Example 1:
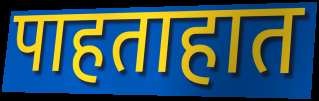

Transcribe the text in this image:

पाहताहात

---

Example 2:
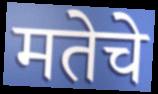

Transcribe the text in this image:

मतेचे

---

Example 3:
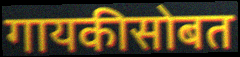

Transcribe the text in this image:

गायकीसोबत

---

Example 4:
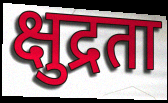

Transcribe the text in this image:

क्षुद्रता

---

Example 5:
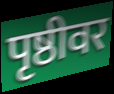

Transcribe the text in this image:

पृष्ठीवर